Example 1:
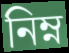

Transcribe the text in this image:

নিম্ন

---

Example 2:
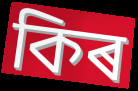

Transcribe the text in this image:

কিৰ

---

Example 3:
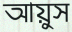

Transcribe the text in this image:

আয়ুস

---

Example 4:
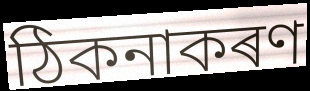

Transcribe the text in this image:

ঠিকনাকৰণ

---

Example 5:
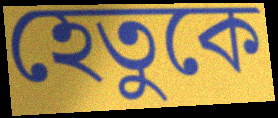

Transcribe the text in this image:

হেতুকে